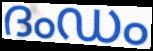
ദംഡം